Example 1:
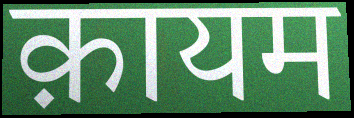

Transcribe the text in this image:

क़ायम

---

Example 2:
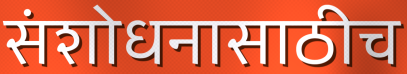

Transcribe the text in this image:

संशोधनासाठीच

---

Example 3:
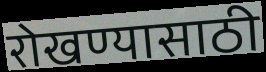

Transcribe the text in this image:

रोखण्यासाठी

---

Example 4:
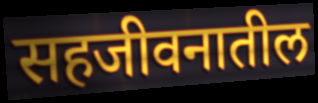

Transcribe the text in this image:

सहजीवनातील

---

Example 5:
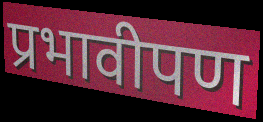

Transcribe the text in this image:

प्रभावीपण